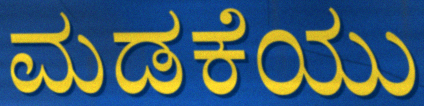
ಮಡಕೆಯು